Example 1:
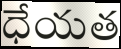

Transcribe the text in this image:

ధేయత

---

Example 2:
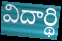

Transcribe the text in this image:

విదార్థి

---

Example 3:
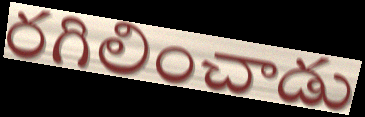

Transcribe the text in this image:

రగిలించాడు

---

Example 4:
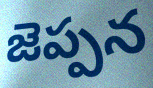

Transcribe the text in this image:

జెప్పన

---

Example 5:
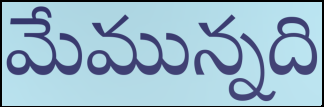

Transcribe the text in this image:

మేమున్నది